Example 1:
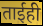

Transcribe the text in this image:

ताईही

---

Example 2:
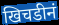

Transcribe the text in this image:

खिचडीनं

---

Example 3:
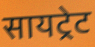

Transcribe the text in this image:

सायट्रेट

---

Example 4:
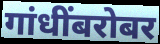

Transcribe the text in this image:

गांधींबरोबर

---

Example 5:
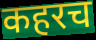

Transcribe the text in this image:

कहरच